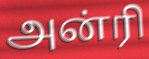
அன்ரி